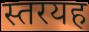
स्तरयह